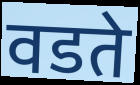
वडते